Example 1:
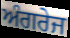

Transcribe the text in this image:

ਅੰਗਰੇਜ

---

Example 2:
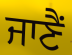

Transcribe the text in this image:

ਜਾਣੈਂ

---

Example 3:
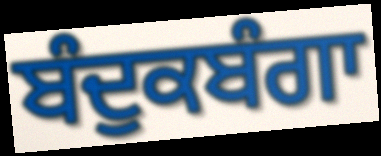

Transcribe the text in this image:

ਬੰਦੁਕਬੰਗਾ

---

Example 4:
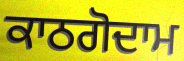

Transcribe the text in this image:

ਕਾਠਗੋਦਾਮ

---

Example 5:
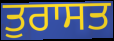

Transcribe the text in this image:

ਤੁਰਾਸਤ